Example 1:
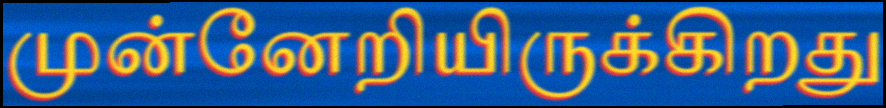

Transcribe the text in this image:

முன்னேறியிருக்கிறது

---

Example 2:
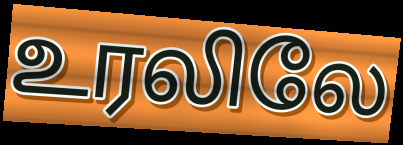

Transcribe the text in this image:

உரலிலே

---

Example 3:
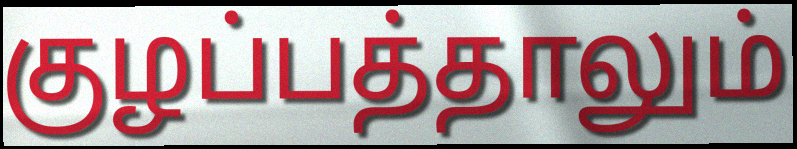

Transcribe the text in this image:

குழப்பத்தாலும்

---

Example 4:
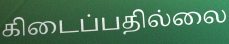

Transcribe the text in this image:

கிடைப்பதில்லை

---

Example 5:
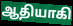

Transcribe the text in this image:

ஆதியாகி